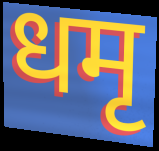
धमृ